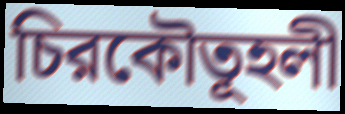
চিরকৌতূহলী